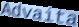
Advaita